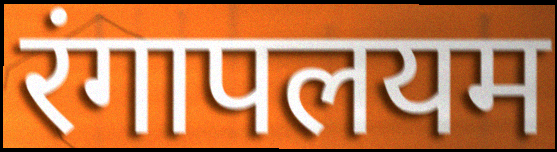
रंगापलयम